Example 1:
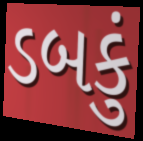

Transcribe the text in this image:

ડબકું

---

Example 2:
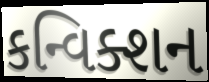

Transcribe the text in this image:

કન્વિક્શન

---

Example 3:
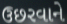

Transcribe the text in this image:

ઉછરવાને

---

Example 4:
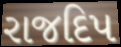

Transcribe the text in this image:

રાજદિપ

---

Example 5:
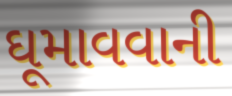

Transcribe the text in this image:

ઘૂમાવવાની